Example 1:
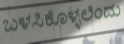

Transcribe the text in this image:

ಬಳಸಿಕೊಳ್ಳಲೆಂದು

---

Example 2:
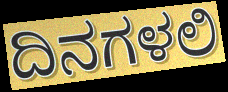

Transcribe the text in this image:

ದಿನಗಳಲಿ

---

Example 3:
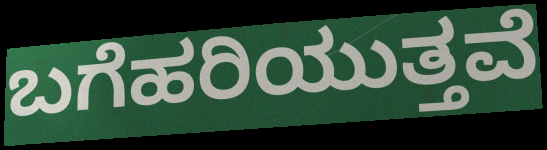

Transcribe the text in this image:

ಬಗೆಹರಿಯುತ್ತವೆ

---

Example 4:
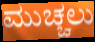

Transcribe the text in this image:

ಮುಚ್ಚಲು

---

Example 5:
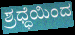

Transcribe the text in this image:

ಶ್ರಧ್ಧೆಯಿಂದ